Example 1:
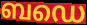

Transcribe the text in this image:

ബഡെ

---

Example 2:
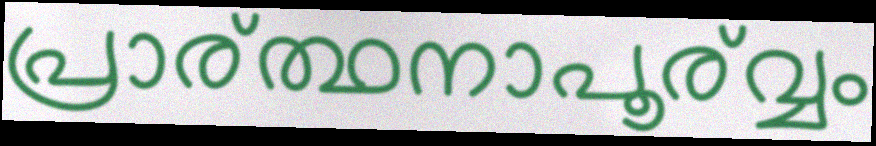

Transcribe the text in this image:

പ്രാര്ത്ഥനാപൂര്വ്വം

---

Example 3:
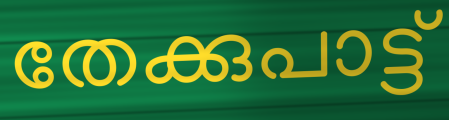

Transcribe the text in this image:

തേക്കുപാട്ട്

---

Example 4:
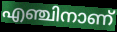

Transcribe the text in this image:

എഞ്ചിനാണ്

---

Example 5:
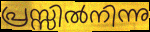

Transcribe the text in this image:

പ്രസ്സിൽനിന്നു